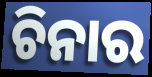
ଚିନାର